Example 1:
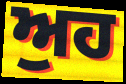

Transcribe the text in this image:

ਅੁਹ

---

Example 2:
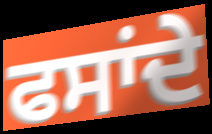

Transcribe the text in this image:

ਫਸਾਂਦੇ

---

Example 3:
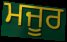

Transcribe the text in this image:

ਮਜੂਰ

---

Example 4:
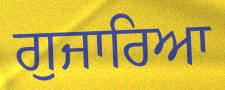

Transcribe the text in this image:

ਗੁਜਾਰਿਆ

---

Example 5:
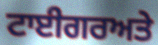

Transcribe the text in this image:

ਟਾਈਗਰਅਤੇ